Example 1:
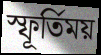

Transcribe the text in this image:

স্ফূর্তিময়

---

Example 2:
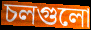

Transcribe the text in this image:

চলগুলো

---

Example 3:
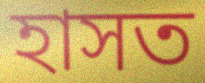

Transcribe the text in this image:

হাসত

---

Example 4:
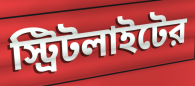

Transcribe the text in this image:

স্ট্রিটলাইটের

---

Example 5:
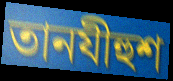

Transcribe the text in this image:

তানযীহুশ